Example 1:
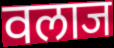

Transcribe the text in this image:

वलाज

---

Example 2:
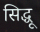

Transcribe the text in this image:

सिद्धू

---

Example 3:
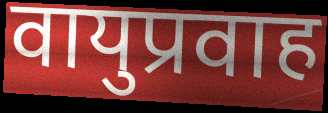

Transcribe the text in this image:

वायुप्रवाह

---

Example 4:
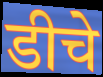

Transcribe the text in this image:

डीचे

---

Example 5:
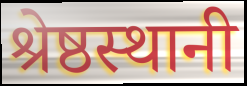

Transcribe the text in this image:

श्रेष्ठस्थानी